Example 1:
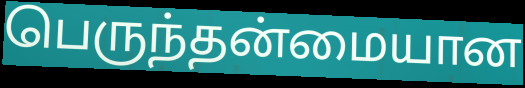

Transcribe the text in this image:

பெருந்தன்மையான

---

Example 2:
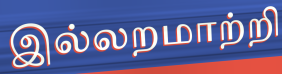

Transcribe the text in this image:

இல்லறமாற்றி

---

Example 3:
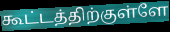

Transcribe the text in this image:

கூட்டத்திற்குள்ளே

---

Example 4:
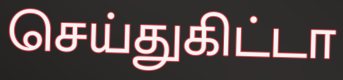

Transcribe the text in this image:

செய்துகிட்டா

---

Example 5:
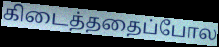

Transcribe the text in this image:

கிடைத்ததைப்போல